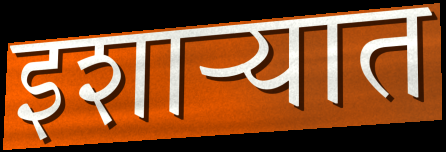
इशाऱ्यात